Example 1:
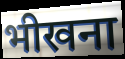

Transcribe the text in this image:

भीखना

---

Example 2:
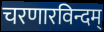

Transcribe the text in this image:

चरणारविन्दम्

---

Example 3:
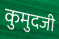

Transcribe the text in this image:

कुमुदजी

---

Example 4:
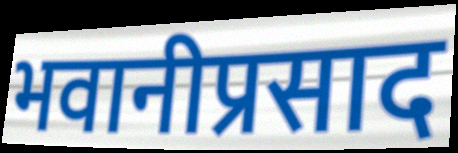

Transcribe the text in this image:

भवानीप्रसाद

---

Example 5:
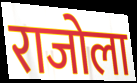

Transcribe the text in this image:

राजोला